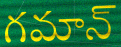
గమాన్